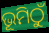
ଭୂମିଠୁଁ